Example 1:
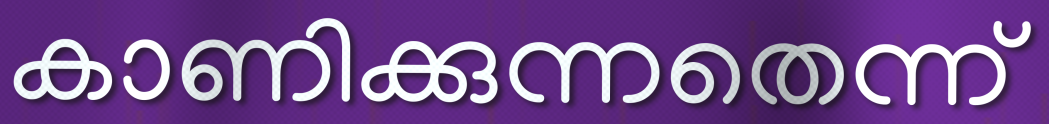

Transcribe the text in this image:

കാണിക്കുന്നതെന്ന്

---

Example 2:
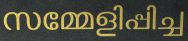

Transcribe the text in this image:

സമ്മേളിപ്പിച്ച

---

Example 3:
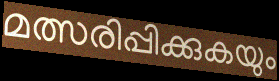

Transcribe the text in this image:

മത്സരിപ്പിക്കുകയും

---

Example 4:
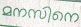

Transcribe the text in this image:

മനസിനെ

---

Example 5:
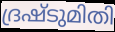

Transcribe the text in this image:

ദ്രഷ്ടുമിതി